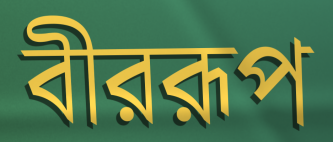
বীররূপ